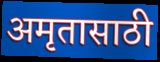
अमृतासाठी